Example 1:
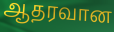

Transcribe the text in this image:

ஆதரவான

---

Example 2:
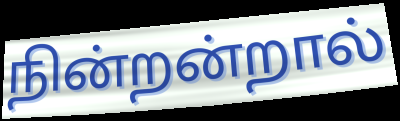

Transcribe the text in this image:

நின்றன்றால்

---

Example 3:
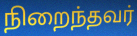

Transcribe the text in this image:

நிறைந்தவர்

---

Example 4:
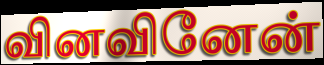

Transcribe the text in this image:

வினவினேன்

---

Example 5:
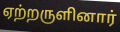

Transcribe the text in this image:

ஏற்றருளினார்